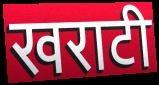
खराटी